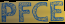
PFCE